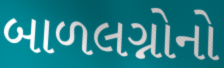
બાળલગ્નોનો